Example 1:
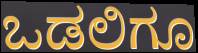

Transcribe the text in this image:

ಒಡಲಿಗೂ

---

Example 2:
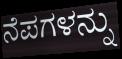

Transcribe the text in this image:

ನೆಪಗಳನ್ನು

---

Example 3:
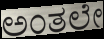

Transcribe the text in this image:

ಅಂತಲೇ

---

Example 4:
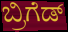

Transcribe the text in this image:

ಬ್ರಿಗೆಡ್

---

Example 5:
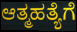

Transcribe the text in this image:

ಆತ್ಮಹತ್ಯೆಗೆ